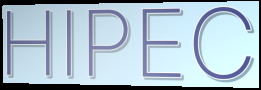
HIPEC